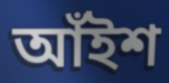
আঁইশ